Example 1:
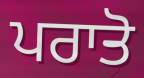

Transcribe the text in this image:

ਪਰਾਤੋ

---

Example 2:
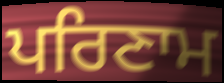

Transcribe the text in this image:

ਪਰਿਣਾਮ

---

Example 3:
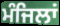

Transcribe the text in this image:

ਮੰਜਿਲਾਂ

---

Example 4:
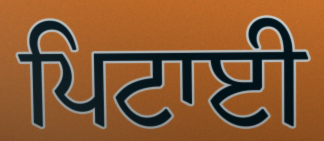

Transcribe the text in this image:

ਪਿਟਾਈ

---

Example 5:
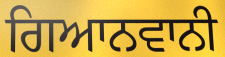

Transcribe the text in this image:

ਗਿਆਨਵਾਨੀ